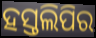
ହସ୍ତଲିପିର